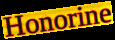
Honorine